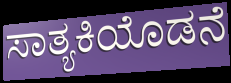
ಸಾತ್ಯಕಿಯೊಡನೆ